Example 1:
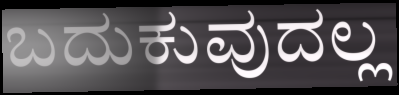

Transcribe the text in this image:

ಬದುಕುವುದಲ್ಲ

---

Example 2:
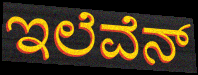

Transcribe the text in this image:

ಇಲೆವೆನ್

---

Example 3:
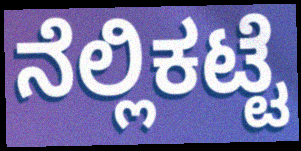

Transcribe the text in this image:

ನೆಲ್ಲಿಕಟ್ಟೆ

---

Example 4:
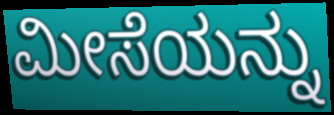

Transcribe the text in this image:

ಮೀಸೆಯನ್ನು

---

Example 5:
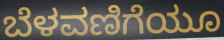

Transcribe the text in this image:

ಬೆಳವಣಿಗೆಯೂ